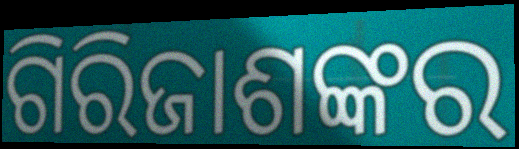
ଗିରିଜାଶଙ୍କର